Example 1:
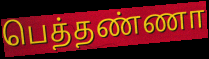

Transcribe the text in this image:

பெத்தண்ணா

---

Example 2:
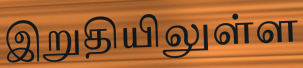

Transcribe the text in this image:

இறுதியிலுள்ள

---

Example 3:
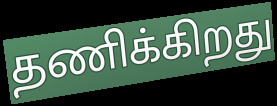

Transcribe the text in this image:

தணிக்கிறது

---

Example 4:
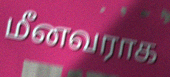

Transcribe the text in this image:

மீனவராக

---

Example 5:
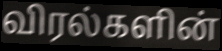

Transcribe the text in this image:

விரல்களின்